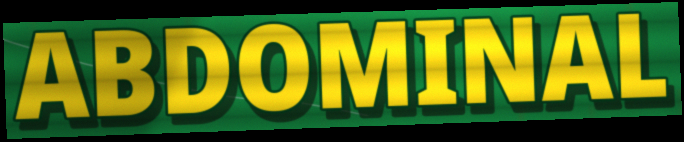
ABDOMINAL